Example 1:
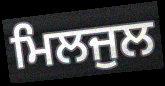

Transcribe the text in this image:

ਮਿਲਜੁਲ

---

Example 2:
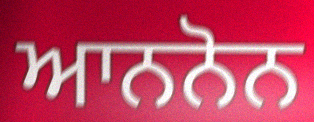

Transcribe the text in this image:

ਆਨਨੋਨ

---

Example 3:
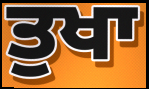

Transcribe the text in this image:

ਤੁਖਾ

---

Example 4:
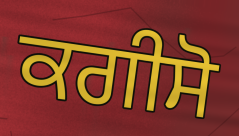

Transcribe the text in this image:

ਕਗੀਸੋ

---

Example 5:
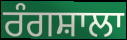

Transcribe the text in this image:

ਰੰਗਸ਼ਾਲਾ